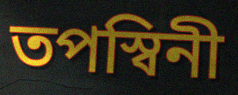
তপস্বিনী